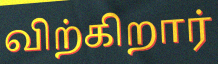
விற்கிறார்